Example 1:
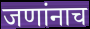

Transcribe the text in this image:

जणांनाच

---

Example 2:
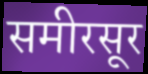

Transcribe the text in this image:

समीरसूर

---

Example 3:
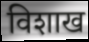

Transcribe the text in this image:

विशाख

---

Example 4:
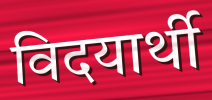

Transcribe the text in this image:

विदयार्थी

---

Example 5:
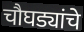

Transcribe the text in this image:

चौघड्यांचे